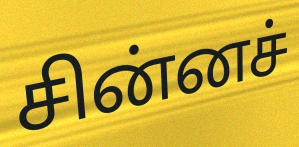
சின்னச்